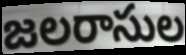
జలరాసుల